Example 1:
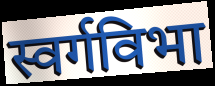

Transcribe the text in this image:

स्वर्गविभा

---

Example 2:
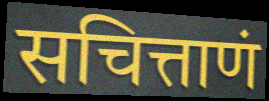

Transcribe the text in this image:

सचित्ताणं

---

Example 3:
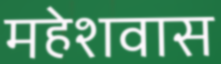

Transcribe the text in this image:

महेशवास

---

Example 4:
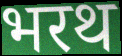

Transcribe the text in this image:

भरथ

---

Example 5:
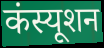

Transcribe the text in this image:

कंस्यूशन